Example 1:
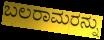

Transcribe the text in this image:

ಬಲರಾಮರನ್ನು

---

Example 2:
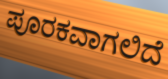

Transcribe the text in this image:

ಪೂರಕವಾಗಲಿದೆ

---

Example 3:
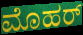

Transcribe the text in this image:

ಮೊಹರ್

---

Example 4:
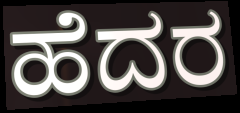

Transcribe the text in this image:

ಹೆದರ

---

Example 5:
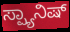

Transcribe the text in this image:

ಸ್ಪ್ಯಾನಿಷ್